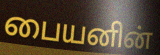
பையனின்